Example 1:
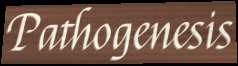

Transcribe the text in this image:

Pathogenesis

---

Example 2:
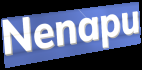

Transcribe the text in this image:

Nenapu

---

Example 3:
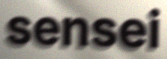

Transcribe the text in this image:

sensei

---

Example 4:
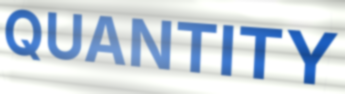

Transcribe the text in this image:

QUANTITY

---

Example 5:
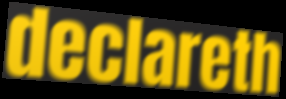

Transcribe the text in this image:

declareth